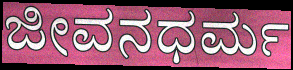
ಜೀವನಧರ್ಮ